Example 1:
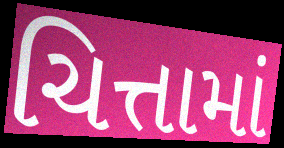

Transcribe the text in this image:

ચિત્તામાં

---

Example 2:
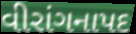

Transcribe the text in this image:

વીરાંગનાપદ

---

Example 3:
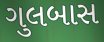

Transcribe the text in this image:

ગુલબાસ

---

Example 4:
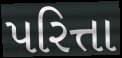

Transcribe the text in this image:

પરિત્તા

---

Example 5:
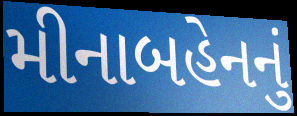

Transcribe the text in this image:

મીનાબહેનનું